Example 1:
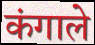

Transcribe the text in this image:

कंगाले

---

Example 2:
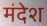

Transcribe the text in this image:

मंदेश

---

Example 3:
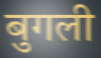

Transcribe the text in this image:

बुगली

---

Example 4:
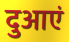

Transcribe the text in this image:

दुआएं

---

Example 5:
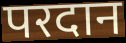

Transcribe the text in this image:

परदान